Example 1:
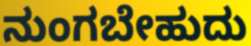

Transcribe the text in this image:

ನುಂಗಬೇಹುದು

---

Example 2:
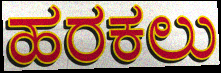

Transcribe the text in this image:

ಹರಕಲು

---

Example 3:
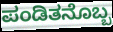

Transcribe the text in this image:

ಪಂಡಿತನೊಬ್ಬ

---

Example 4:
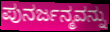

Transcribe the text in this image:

ಪುನರ್ಜನ್ಮವನ್ನು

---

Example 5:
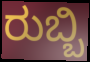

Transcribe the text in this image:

ರುಬ್ಬಿ